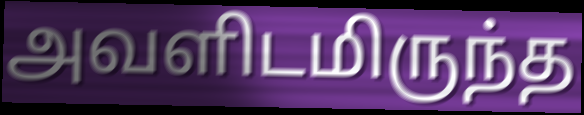
அவளிடமிருந்த